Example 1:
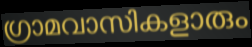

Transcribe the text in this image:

ഗ്രാമവാസികളാരും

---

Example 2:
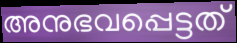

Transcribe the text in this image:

അനുഭവപ്പെട്ടത്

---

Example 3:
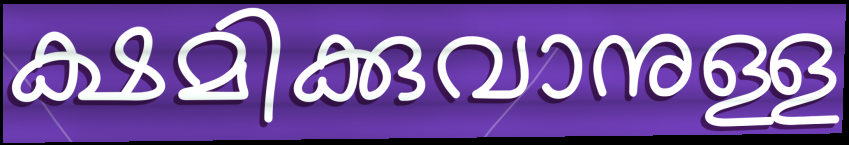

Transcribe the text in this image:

ക്ഷമിക്കുവാനുള്ള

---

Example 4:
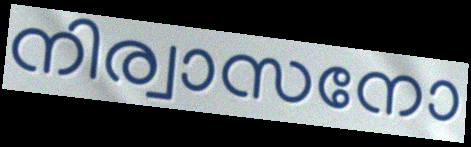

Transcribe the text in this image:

നിര്വാസനോ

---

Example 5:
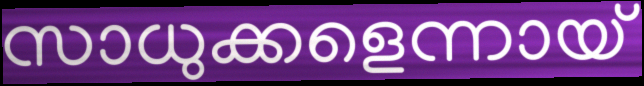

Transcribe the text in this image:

സാധുക്കളെന്നായ്